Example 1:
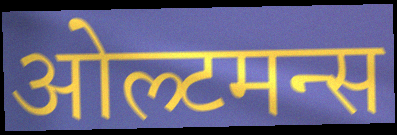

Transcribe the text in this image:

ओल्टमन्स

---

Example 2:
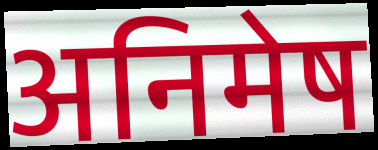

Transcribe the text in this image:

अनिमेष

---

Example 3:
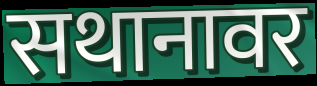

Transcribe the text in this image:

सथानावर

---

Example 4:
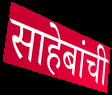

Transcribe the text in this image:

साहेबांची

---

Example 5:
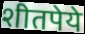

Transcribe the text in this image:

शीतपेये